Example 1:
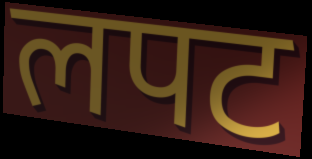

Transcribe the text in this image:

लपट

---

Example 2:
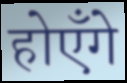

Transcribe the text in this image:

होएँगे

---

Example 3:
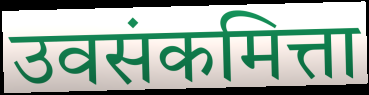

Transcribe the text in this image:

उवसंकमित्ता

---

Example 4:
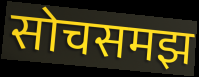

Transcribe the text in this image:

सोचसमझ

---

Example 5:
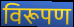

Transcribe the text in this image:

विरूपण